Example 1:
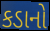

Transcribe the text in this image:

કડાનો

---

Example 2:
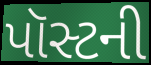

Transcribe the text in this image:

પૉસ્ટની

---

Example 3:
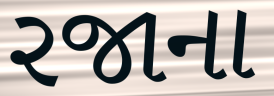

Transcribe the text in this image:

રજાના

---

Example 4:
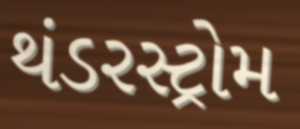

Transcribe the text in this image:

થંડરસ્ટ્રોમ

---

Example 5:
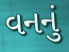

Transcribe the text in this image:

વનનું